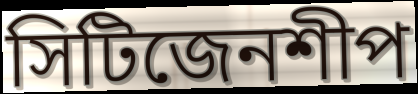
সিটিজেনশীপ